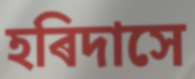
হৰিদাসে